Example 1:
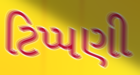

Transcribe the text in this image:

ટિપ્પણી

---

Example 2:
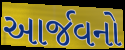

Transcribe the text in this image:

આર્જવનો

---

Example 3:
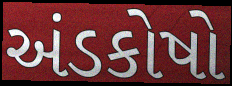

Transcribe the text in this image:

અંડકોષો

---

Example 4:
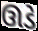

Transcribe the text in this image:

ઊડે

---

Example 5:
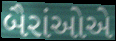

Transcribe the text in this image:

બૈરાંઓએ